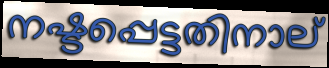
നഷ്ടപ്പെട്ടതിനാല്